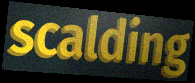
scalding